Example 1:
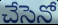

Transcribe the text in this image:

చేసెనో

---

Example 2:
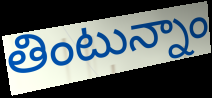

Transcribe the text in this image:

తింటున్నాం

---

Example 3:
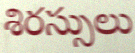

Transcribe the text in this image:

శిరస్సులు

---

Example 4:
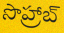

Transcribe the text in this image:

సొహ్రాబ్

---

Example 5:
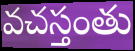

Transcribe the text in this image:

వచస్తంతు